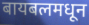
बायबलमधून